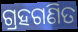
ଗ୍ରହଗଣିତ